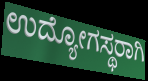
ಉದ್ಯೋಗಸ್ಥರಾಗಿ